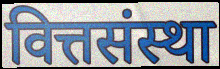
वित्तसंस्था